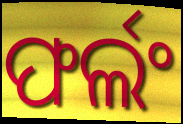
ଫର୍ଲଂ